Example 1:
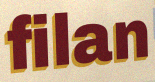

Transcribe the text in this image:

filan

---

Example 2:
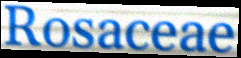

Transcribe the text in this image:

Rosaceae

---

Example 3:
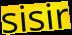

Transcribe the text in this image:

sisir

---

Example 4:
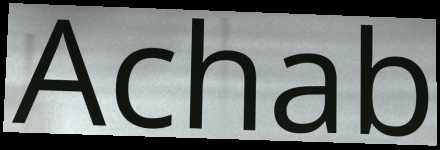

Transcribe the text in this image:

Achab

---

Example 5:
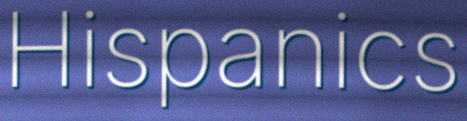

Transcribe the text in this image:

Hispanics